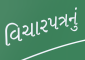
વિચારપત્રનું